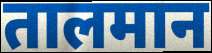
तालमान